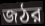
জঠর